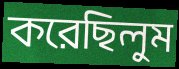
করেছিলুম